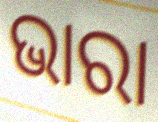
ଭାରା